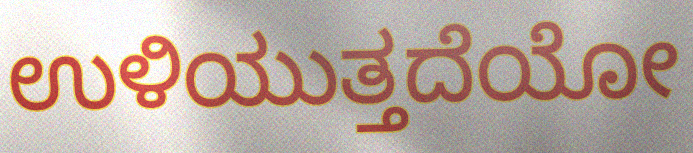
ಉಳಿಯುತ್ತದೆಯೋ